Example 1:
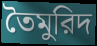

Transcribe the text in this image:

তৈমুরিদ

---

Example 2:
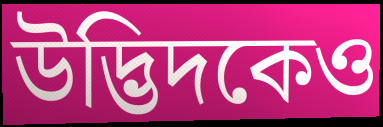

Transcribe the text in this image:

উদ্ভিদকেও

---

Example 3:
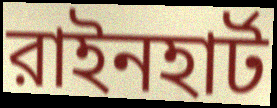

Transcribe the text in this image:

রাইনহার্ট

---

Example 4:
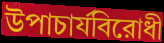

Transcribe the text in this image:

উপাচার্যবিরোধী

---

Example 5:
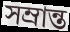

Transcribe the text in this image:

সম্রান্ত